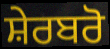
ਸ਼ੇਰਬਰੋ